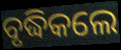
ବୃଦ୍ଧିକଲେ